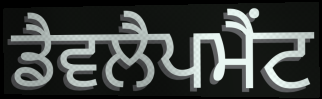
ਡੈਵਲੈਪਮੈਂਟ